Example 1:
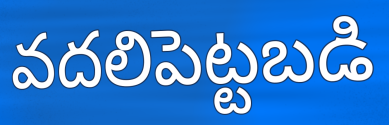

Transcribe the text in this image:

వదలిపెట్టబడి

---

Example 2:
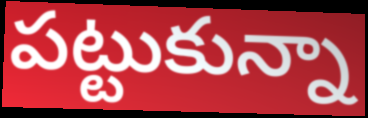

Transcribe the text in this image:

పట్టుకున్నా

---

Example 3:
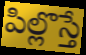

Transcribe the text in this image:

పిల్లొస్తే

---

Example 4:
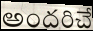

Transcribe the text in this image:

అందరిచే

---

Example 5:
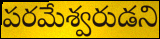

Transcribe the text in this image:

పరమేశ్వరుడని